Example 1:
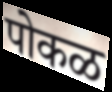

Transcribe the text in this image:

पोकळ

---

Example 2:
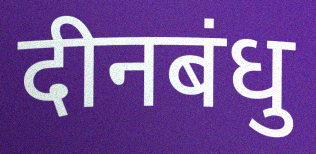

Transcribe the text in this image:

दीनबंधु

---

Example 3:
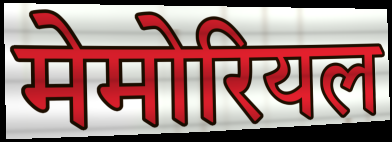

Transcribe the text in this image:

मेमोरियल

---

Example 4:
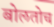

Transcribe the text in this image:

बोलतोच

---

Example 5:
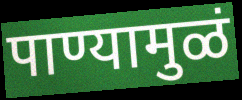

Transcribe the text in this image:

पाण्यामुळं